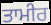
ਤਾਮੀਰ